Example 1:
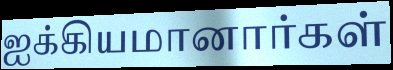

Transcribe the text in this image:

ஐக்கியமானார்கள்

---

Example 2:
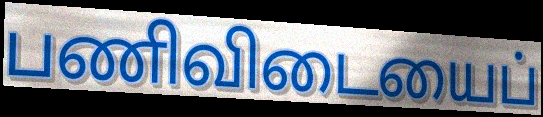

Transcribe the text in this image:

பணிவிடையைப்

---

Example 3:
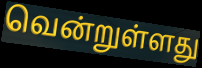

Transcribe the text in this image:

வென்றுள்ளது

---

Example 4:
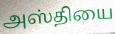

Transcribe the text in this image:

அஸ்தியை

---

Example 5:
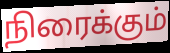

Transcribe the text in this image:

நிரைக்கும்